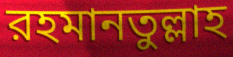
রহমানতুল্লাহ